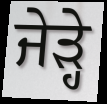
ਜੇੜ੍ਹੇ